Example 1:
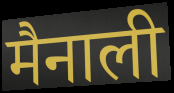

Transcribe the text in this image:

मैनाली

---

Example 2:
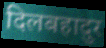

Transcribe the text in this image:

दिलबहादुर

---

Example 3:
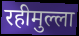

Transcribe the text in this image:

रहीमुल्ला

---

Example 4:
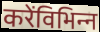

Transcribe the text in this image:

करेंविभिन्न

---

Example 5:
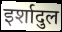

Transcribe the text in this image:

इर्शादुल